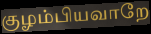
குழம்பியவாறே